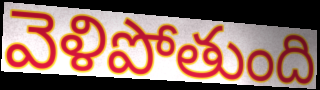
వెళిపోతుంది